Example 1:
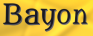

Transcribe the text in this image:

Bayon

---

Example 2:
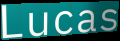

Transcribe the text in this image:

Lucas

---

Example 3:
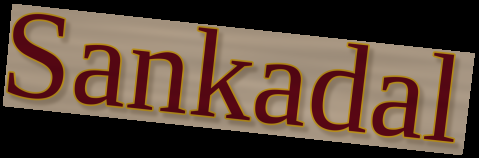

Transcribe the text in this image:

Sankadal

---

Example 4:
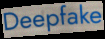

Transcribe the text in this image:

Deepfake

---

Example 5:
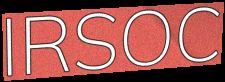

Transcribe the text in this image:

IRSOC